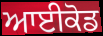
ਆਈਕੋਡ